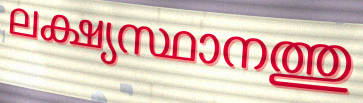
ലക്ഷ്യസ്ഥാനത്തു